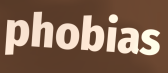
phobias